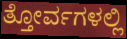
ತ್ತೋರ್ವಗಳಲ್ಲಿ